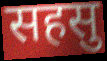
सहसु